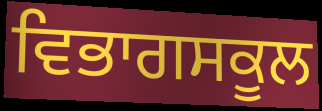
ਵਿਭਾਗਸਕੂਲ